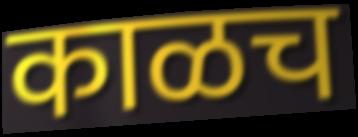
काळच